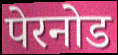
पेरनोड